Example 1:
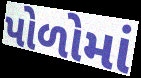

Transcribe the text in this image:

પોળોમાં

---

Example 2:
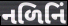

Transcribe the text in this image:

નળિનિં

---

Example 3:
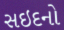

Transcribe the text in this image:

સઇદનો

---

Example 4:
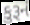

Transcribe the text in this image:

કુરૂનં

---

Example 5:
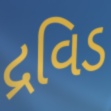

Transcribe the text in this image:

દ્રવિડ